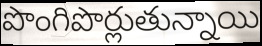
పొంగిపొర్లుతున్నాయి